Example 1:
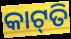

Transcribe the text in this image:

କାଟ୍‍ତି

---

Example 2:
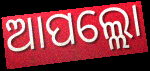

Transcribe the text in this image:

ଆପଲ୍ଲୋ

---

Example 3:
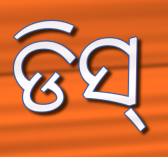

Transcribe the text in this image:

ଡିସ୍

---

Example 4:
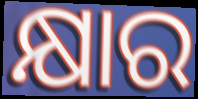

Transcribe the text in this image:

କ୍ଷାର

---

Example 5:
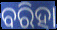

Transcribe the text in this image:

ବରିହା